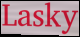
Lasky